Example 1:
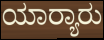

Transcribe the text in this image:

ಯಾರ್‍ಯಾರು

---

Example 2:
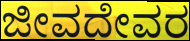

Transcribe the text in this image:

ಜೀವದೇವರ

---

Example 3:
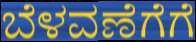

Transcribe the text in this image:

ಬೆಳವಣೆಗೆಗೆ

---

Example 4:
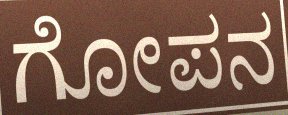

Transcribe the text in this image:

ಗೋಪನ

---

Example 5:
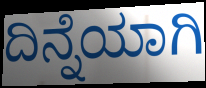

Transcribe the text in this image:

ದಿನ್ನೆಯಾಗಿ